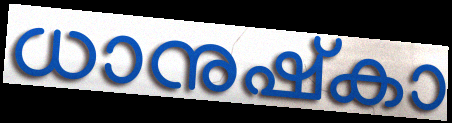
ധാനുഷ്കാ